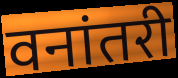
वनांतरी